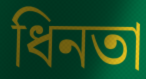
ধিনতা